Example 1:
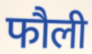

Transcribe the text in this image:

फौली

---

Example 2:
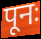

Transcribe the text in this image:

पूनः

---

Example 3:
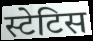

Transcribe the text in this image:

स्टेटिस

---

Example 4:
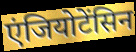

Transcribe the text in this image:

एंजियोटेंसिन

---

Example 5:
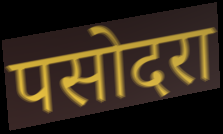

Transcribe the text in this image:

पसोदरा